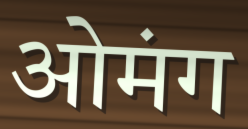
ओमंग